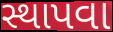
સ્થાપવા